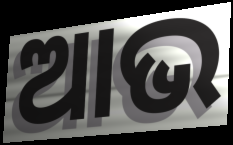
ଆଭ